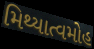
મિથ્યાત્વમોહ